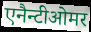
एनैन्टीओमर